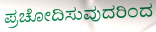
ಪ್ರಚೋದಿಸುವುದರಿಂದ